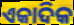
ଏକାଦିକ